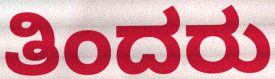
ತಿಂದರು